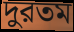
দুরতম